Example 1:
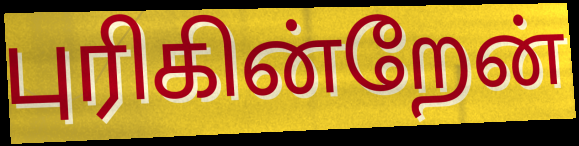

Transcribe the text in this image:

புரிகின்றேன்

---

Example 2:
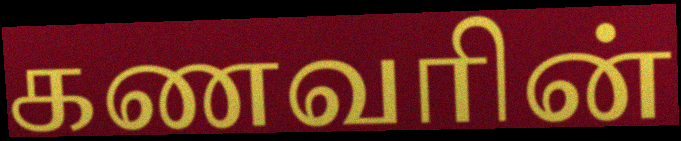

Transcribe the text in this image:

கணவரின்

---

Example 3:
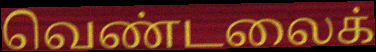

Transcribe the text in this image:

வெண்டலைக்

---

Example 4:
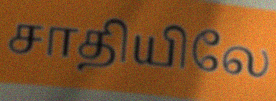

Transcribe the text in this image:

சாதியிலே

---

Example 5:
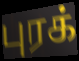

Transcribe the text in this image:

புரக்